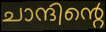
ചാന്ദിന്റെ